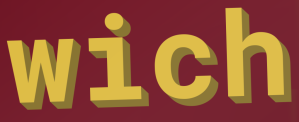
wich